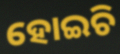
ହୋଇଚି